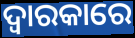
ଦ୍ବାରକାରେ